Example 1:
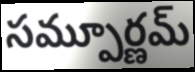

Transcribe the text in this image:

సమ్పూర్ణమ్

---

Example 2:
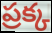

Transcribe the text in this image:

ప్రక్క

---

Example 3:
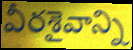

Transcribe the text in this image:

వీరశైవాన్ని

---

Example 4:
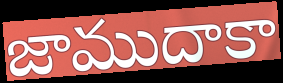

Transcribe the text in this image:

జాముదాకా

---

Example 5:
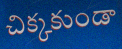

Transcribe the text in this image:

చిక్కకుండా